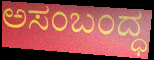
ಅಸಂಬಂದ್ಧ